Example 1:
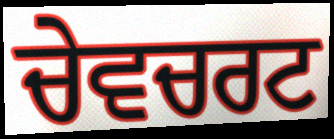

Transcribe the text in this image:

ਚੇਵਚਰਟ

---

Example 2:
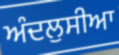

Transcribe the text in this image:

ਅੰਦਲੁਸੀਆ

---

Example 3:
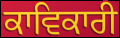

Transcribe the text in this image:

ਕਾਵਿਕਾਰੀ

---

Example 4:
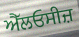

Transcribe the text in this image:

ਐੱਲਓਸੀਜ਼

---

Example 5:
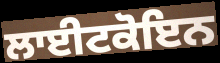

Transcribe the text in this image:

ਲਾਈਟਕੋਇਨ